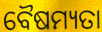
ବୈଷମ୍ୟତା